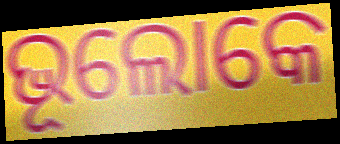
ଭୂଲୋକେ